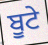
ਬੂਟੇ